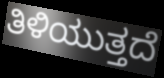
ತಿಳಿಯುತ್ತದೆ